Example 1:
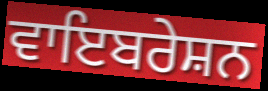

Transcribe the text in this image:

ਵਾਇਬਰੇਸ਼ਨ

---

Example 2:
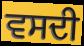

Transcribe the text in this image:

ਵਸਦੀ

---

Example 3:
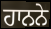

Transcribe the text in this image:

ਹਾਨਨੇ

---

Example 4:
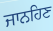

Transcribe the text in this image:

ਜਾਨਹਿਣ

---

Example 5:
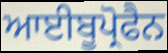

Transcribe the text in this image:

ਆਈਬੂਪ੍ਰੋਫੈਨ